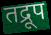
तद्रूप